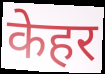
केहर